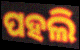
ପହଲି